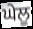
ਘੇਲੂ